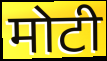
मोटी